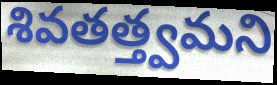
శివతత్త్వమని